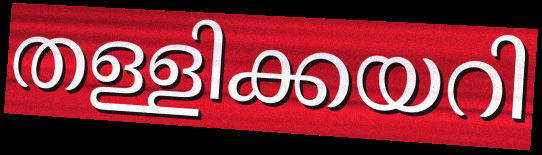
തള്ളിക്കയറി